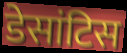
डेसांटिस